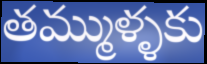
తమ్ముళ్ళకు